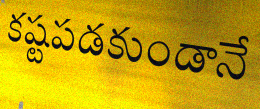
కష్టపడకుండానే